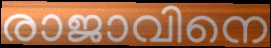
രാജാവിനെ